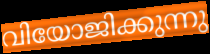
വിയോജിക്കുന്നു